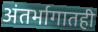
अंतर्भागातही